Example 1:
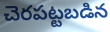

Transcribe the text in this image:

చెరపట్టబడిన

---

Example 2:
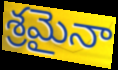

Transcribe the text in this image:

శ్రమైనా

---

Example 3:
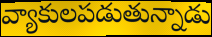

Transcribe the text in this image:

వ్యాకులపడుతున్నాడు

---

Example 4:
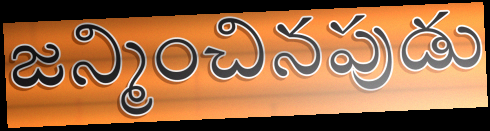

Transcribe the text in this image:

జన్మించినపుడు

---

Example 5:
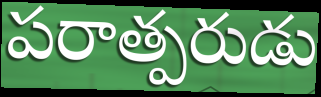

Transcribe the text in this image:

పరాత్పరుడు